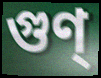
গুণ্